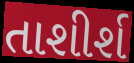
તાશીર્શ